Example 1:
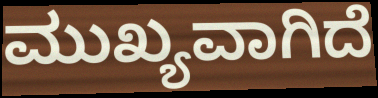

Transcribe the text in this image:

ಮುಖ್ಯವಾಗಿದೆ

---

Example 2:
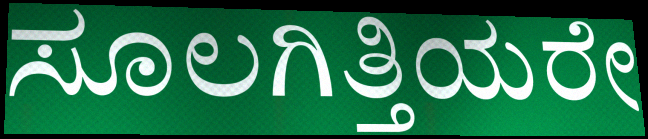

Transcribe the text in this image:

ಸೂಲಗಿತ್ತಿಯರೇ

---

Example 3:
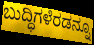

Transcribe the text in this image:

ಬುದ್ಧಿಗಳೆರಡನ್ನೂ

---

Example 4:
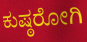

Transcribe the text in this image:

ಕುಷ್ಠರೋಗಿ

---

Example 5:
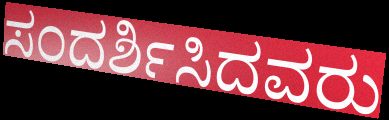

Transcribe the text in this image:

ಸಂದರ್ಶಿಸಿದವರು